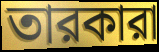
তারকারা